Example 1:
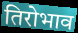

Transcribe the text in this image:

तिरोभाव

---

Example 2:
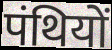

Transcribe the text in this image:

पंथियों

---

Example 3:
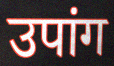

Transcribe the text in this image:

उपांग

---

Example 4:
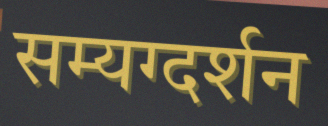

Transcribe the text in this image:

सम्‍यग्‍दर्शन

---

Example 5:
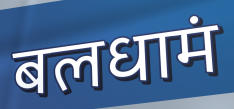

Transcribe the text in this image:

बलधामं